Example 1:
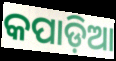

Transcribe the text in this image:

କପାଡ଼ିଆ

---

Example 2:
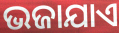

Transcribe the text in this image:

ଭଜାଯାଏ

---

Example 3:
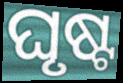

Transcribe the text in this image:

ଘୃଷ୍ଟ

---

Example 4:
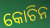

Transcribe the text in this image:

କୋଚିନ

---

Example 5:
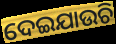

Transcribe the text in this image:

ଦେଇଯାଉଚି